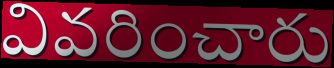
వివరించారు